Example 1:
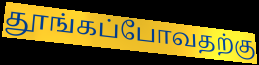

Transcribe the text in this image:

தூங்கப்போவதற்கு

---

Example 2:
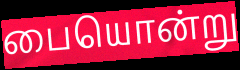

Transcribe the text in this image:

பையொன்று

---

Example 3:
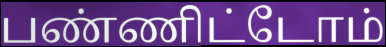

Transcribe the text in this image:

பண்ணிட்டோம்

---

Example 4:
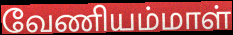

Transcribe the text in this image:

வேணியம்மாள்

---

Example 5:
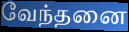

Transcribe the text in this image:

வேந்தனை